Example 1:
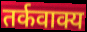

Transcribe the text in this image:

तर्कवाक्य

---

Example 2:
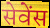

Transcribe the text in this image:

सेवेंस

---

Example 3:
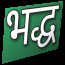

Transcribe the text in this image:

भद्ध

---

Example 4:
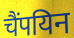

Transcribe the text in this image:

चैंपयिन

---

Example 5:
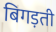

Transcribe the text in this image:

बिगड़ती